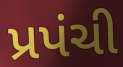
પ્રપંચી